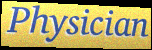
Physician